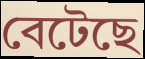
বেটেছে